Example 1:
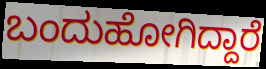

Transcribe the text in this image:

ಬಂದುಹೋಗಿದ್ದಾರೆ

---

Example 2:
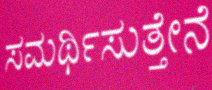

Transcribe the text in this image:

ಸಮರ್ಥಿಸುತ್ತೇನೆ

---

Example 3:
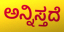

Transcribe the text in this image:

ಅನ್ನಿಸ್ತದೆ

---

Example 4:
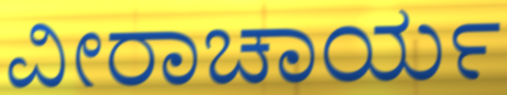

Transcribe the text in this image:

ವೀರಾಚಾರ್ಯ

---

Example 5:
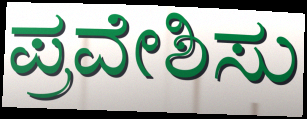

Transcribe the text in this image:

ಪ್ರವೇಶಿಸು